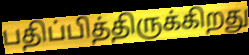
பதிப்பித்திருக்கிறது